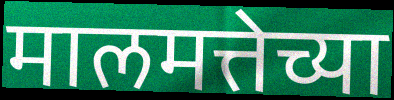
मालमत्तेच्या